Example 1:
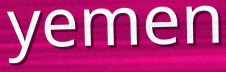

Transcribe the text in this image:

yemen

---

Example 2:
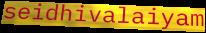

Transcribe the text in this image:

seidhivalaiyam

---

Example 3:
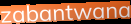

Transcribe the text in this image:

zabantwana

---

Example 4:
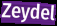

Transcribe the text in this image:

Zeydel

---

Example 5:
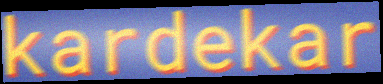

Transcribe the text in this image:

kardekar